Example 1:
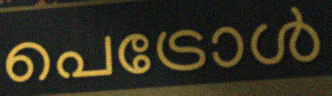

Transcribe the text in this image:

പെട്രോൾ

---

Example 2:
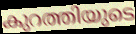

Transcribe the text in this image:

കുറത്തിയുടെ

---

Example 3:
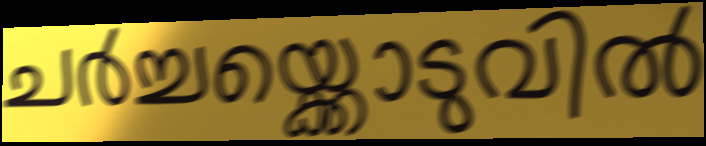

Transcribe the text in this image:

ചർച്ചയ്ക്കൊടുവിൽ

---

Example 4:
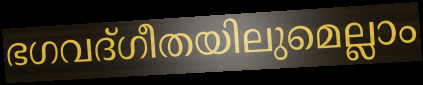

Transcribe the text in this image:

ഭഗവദ്ഗീതയിലുമെല്ലാം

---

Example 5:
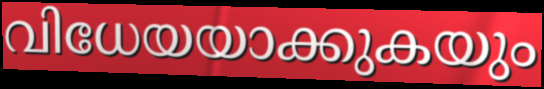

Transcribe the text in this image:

വിധേയയാക്കുകയും